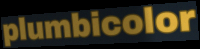
plumbicolor